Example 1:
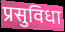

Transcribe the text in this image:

प्रसुविधा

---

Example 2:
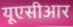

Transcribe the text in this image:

यूएसीआर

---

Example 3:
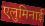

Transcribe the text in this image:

एलुमिनाई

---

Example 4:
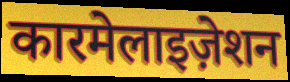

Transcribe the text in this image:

कारमेलाइज़ेशन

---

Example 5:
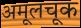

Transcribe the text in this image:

अमूलचूक